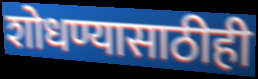
शोधण्यासाठीही